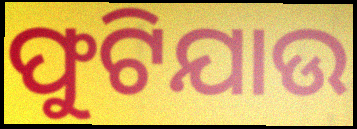
ଫୁଟିଯାଉ